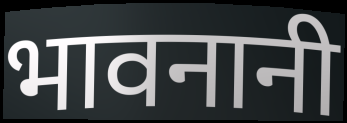
भावनानी